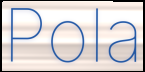
Pola